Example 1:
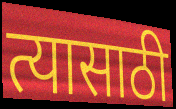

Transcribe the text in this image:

त्यासाठी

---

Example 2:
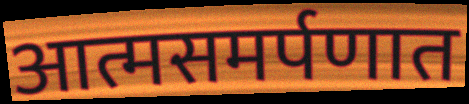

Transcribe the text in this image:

आत्मसमर्पणात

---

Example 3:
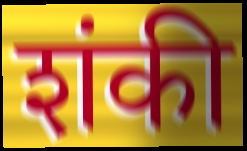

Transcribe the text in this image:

शंकी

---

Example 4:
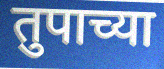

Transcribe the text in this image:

तुपाच्या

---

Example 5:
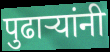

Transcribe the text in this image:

पुढाऱ्यांनी